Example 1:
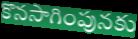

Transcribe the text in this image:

కొనసాగింపునకు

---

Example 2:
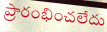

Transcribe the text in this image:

ప్రారంభించలేదు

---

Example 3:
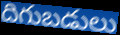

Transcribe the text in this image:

దిగుబడులు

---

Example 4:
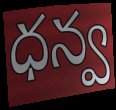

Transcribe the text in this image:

ధన్వ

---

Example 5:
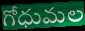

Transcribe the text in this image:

గోధుమల